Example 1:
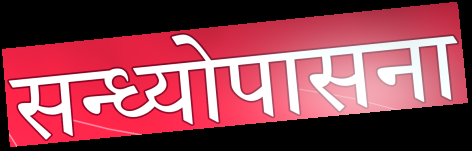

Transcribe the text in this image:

सन्ध्योपासना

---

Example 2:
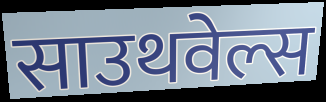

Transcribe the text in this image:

साउथवेल्स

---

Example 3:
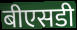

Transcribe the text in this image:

बीएसडी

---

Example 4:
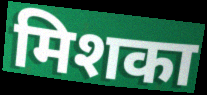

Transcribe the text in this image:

मिशका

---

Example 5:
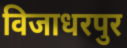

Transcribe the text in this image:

विजाधरपुर